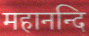
महानन्दि